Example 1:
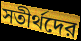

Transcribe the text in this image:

সতীর্থদের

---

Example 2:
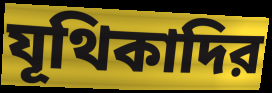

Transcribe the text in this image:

যূথিকাদির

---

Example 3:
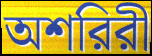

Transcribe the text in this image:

অশরিরী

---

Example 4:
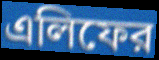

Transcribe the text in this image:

এলিফের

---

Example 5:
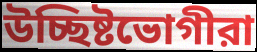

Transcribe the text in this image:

উচ্ছিষ্টভোগীরা